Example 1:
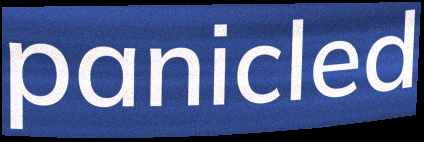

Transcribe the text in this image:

panicled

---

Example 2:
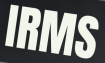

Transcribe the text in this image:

IRMS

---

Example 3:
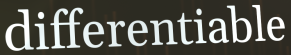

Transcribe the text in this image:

differentiable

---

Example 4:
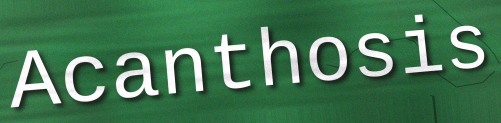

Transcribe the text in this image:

Acanthosis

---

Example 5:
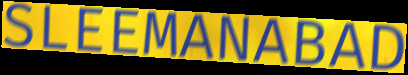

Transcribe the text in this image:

SLEEMANABAD